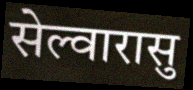
सेल्वारासु